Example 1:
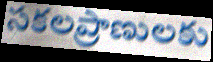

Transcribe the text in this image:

సకలప్రాణులకు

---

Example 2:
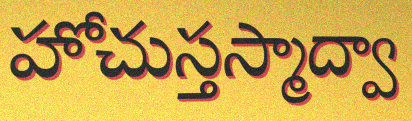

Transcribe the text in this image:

హోచుస్తస్మాద్వా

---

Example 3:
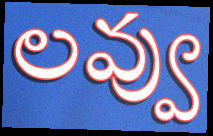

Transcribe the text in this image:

లవ్వు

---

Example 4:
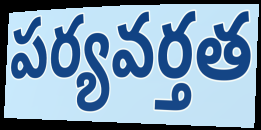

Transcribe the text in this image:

పర్యవర్తత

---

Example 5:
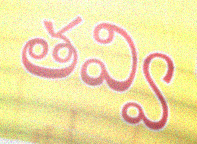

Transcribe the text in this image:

తవ్వి